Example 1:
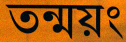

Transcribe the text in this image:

তন্ময়ং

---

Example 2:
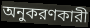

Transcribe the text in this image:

অনুকরণকারী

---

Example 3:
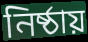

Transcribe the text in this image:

নিষ্ঠায়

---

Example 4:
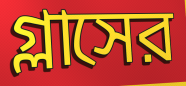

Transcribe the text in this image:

গ্লাসের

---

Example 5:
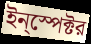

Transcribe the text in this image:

ইন্‌স্পেক্টর